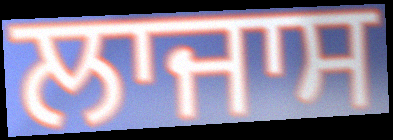
ਲਾਜਾਸ